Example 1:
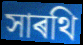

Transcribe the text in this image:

সাৰথি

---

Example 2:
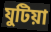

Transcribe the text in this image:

যুটিয়া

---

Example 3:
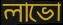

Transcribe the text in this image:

লাভো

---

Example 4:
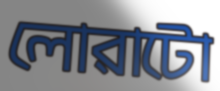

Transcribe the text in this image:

লোৱাটো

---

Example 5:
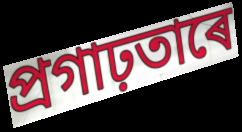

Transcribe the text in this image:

প্ৰগাঢ়তাৰে